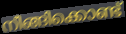
നീങ്ങിക്കൊണ്ട്